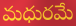
మధురమే